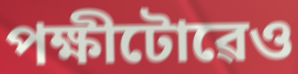
পক্ষীটোৱেও